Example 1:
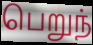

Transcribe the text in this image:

பெறுந்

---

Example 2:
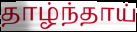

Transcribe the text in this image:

தாழ்ந்தாய்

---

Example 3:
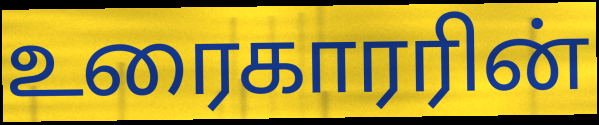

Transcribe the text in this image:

உரைகாரரின்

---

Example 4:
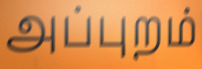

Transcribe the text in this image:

அப்புறம்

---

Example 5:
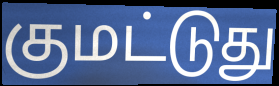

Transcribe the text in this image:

குமட்டுது